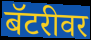
बॅटरीवर